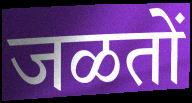
जळतों